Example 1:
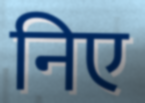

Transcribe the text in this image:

निए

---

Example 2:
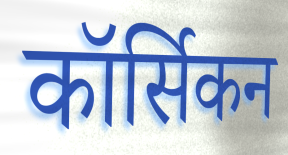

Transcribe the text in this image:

कॉर्सिकन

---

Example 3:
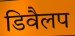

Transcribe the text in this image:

डिवैलप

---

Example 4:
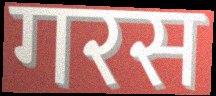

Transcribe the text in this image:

गरस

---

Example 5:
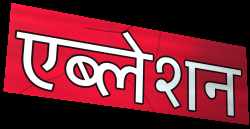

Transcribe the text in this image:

एब्लेशन